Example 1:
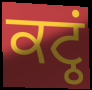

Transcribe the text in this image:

ਕਟ੍ਠਂ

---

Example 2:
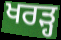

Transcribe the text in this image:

ਖਰੜ੍ਹ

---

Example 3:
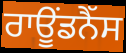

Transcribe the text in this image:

ਰਾਊਂਡਨੈੱਸ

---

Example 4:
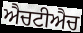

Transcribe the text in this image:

ਐਚਟੀਐਚ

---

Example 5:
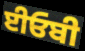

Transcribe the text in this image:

ਈਓਬੀ